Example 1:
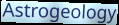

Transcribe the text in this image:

Astrogeology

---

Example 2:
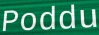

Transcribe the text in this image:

Poddu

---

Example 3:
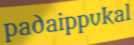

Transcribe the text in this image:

padaippukal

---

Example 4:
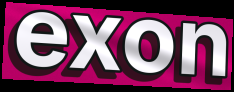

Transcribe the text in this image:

exon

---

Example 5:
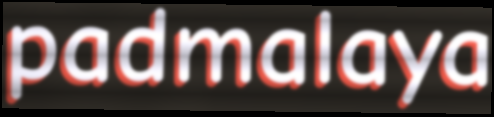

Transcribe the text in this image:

padmalaya